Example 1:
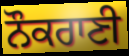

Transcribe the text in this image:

ਨੌਕਰਾਣੀ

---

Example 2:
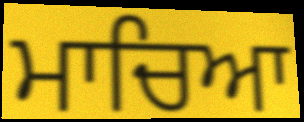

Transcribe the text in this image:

ਮਾਚਿਆ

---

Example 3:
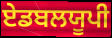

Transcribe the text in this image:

ਏਡਬਲਯੂਪੀ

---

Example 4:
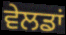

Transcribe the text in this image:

ਵੇਲਡਾਂ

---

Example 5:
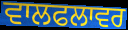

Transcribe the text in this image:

ਵਾਲਫਲਾਵਰ